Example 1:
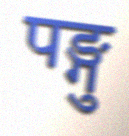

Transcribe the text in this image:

पङ्गु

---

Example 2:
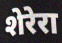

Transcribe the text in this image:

शेरेरा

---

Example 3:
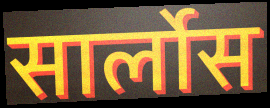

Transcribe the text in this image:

सार्लोस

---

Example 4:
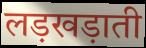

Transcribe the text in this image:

लड़खड़ाती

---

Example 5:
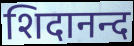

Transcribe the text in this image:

शिदानन्द